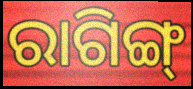
ରାଗିଙ୍ଗ୍